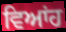
ਵਿਆਂਹ